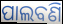
ପାଲବଣି